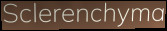
Sclerenchyma